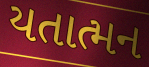
યતાત્મન